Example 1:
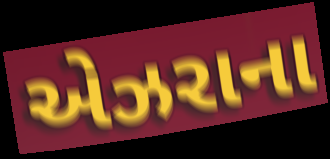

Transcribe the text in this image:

એઝરાના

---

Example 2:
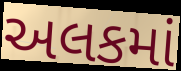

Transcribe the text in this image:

અલકમાં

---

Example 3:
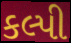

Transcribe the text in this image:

કલ્પી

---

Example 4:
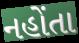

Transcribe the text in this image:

નહોંતા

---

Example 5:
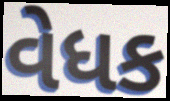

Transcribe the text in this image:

વેધક